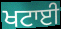
ਖਟਾਈ